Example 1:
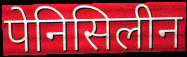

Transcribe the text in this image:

पेनिसिलीन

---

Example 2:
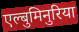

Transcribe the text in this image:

एल्बुमिनुरिया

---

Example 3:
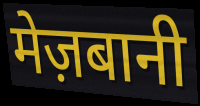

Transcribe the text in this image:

मेज़बानी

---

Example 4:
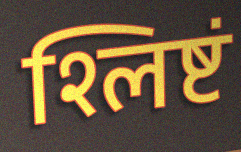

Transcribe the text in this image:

श्लिष्टं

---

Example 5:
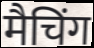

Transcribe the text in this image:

मैचिंग